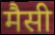
मैसी